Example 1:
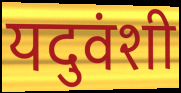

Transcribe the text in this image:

यदुवंशी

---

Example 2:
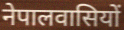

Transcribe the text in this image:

नेपालवासियों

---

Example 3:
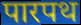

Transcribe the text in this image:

पारपथ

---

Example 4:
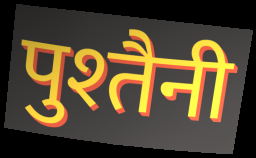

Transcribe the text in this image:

पुश्‍तैनी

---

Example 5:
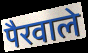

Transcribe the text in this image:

पैरवाले